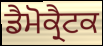
ਡੈਮੋਕ੍ਰੈਟਕ